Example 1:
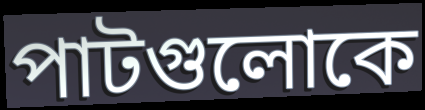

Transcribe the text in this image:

পাটগুলোকে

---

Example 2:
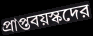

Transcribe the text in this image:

প্রাপ্তবয়স্কদের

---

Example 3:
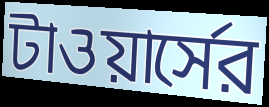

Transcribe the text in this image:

টাওয়ার্সের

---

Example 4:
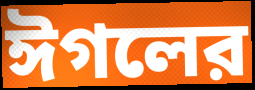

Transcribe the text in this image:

ঈগলের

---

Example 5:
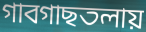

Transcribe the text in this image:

গাবগাছতলায়